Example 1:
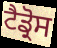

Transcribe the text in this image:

ਟੈਡ੍ਰੋਸ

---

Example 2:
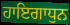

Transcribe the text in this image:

ਹਾਇਗਾਧੁਨ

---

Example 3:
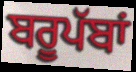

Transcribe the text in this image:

ਬਰੂਪੱਬਾਂ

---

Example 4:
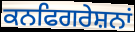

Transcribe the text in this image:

ਕਨਫਿਗਰੇਸ਼ਨਾਂ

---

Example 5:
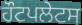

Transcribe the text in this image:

ਹੌਟਪਲੇਟਸ